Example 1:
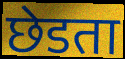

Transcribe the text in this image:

छेडता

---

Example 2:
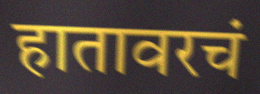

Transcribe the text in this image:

हातावरचं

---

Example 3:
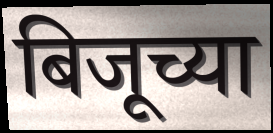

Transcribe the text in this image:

बिजूच्या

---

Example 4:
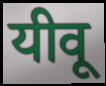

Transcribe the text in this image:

यीवू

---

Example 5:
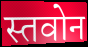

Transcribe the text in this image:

स्तवोन